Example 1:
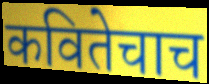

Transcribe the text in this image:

कवितेचाच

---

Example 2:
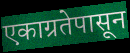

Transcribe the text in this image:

एकाग्रतेपासून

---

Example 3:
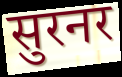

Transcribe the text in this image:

सुरनर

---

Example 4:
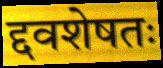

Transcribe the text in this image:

द्दवशेषतः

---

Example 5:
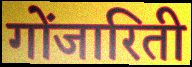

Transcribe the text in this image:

गोंजारिती